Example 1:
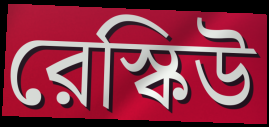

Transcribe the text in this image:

রেস্কিউ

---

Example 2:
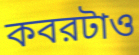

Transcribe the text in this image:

কবরটাও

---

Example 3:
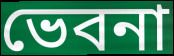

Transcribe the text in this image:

ভেবনা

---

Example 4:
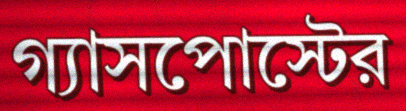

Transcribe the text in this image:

গ্যাসপোস্টের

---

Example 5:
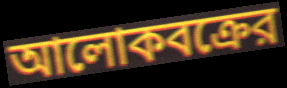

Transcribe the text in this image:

আলোকবক্রের